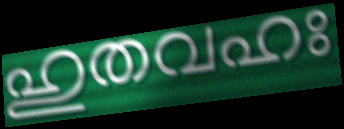
ഹുതവഹഃ